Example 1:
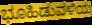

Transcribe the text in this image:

ಭೂಹಿಡುವಳಿಯ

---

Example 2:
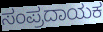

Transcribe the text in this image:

ಸಂಪ್ರದಾಯಕ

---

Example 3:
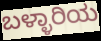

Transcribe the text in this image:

ಬಳ್ಳಾರಿಯ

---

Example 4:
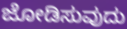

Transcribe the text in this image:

ಜೋಡಿಸುವುದು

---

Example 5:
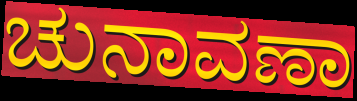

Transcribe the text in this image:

ಚುನಾವಣಾ